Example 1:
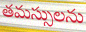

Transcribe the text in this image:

తమస్సులను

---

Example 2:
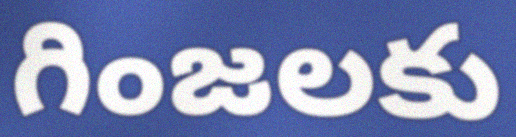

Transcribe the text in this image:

గింజలకు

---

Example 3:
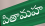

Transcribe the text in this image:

పితామహ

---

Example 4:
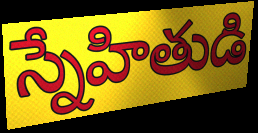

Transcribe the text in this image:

స్నేహితుడి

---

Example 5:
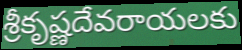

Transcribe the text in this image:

శ్రీకృష్ణదేవరాయలకు